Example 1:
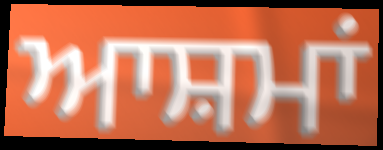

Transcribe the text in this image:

ਆਸ਼ਮਾਂ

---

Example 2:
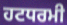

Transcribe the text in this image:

ਹਟਧਰਮੀ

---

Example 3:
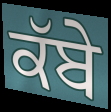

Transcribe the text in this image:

ਕੱਬੇ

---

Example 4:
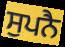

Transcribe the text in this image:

ਸੁਪਨੈ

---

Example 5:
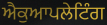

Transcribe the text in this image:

ਐਕੁਆਪਲੇਟਿੰਗ